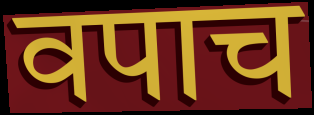
वपाच